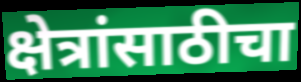
क्षेत्रांसाठीचा